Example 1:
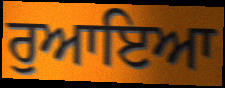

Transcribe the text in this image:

ਰੁਆਇਆ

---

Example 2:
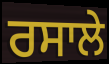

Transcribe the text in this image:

ਰਸਾਲੇ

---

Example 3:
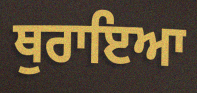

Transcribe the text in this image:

ਥੁਰਾਇਆ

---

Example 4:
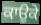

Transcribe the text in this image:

ਕਾਉਕੇ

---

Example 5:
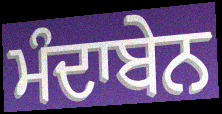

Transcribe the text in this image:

ਮੰਦਾਬੇਨ